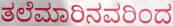
ತಲೆಮಾರಿನವರಿಂದ